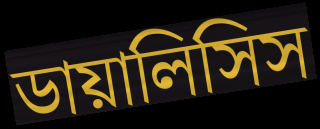
ডায়ালিসিস